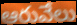
ఆరువేలు